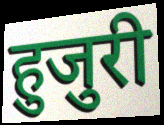
हुजुरी